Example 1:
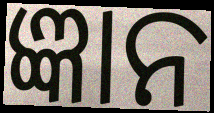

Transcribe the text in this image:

ଜ୍ଞାନ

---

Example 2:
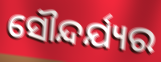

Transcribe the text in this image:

ସୌନ୍ଦର୍ଯ୍ୟର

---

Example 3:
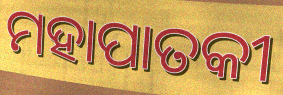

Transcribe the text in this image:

ମହାପାତକୀ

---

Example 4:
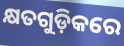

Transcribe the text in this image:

କ୍ଷତଗୁଡ଼ିକରେ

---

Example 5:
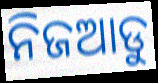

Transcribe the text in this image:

ନିଜଆଡୁ